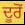
ਦੂਰੋਂ